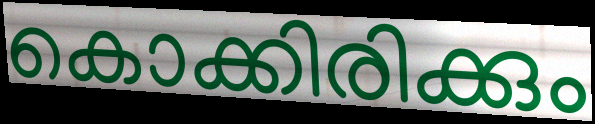
കൊക്കിരിക്കും